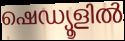
ഷെഡ്യൂളിൽ